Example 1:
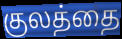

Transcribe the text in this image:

குலத்தை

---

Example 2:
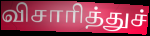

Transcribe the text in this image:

விசாரித்துச்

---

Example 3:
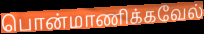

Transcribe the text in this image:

பொன்மாணிக்கவேல்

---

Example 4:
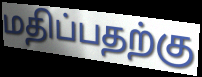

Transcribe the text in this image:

மதிப்பதற்கு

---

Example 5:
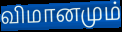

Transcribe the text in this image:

விமானமும்